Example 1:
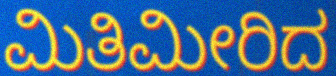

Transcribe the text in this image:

ಮಿತಿಮೀರಿದ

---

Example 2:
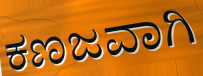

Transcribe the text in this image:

ಕಣಜವಾಗಿ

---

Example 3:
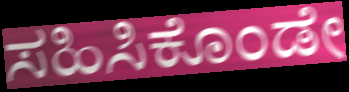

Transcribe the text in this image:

ಸಹಿಸಿಕೊಂಡೇ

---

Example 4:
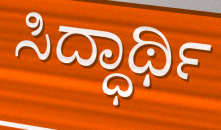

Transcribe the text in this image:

ಸಿದ್ಧಾರ್ಥಿ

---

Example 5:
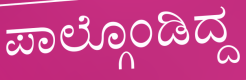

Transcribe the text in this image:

ಪಾಲ್ಗೊಂಡಿದ್ದ